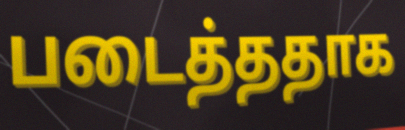
படைத்ததாக